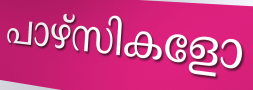
പാഴ്സികളോ